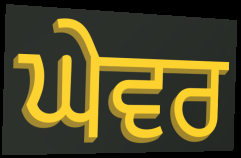
ਘੇਵਰ